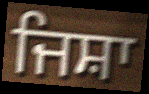
ਜਿਸ਼ਾ